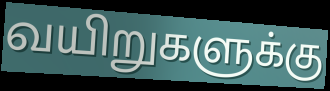
வயிறுகளுக்கு